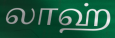
லாஹ்